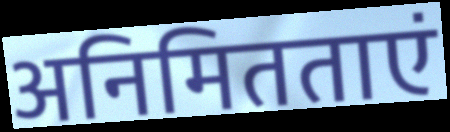
अनिमितताएं